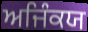
ਅਜਿੰਕਯ